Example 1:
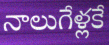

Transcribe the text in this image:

నాలుగేళ్లకే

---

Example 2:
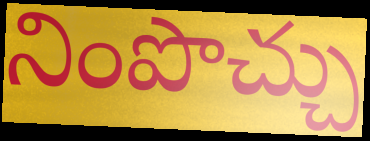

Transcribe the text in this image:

నింపొచ్చు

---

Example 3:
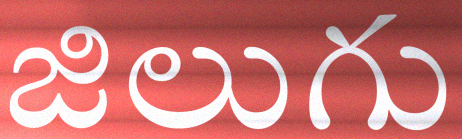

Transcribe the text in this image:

జిలుగు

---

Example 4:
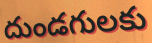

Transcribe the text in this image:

దుండగులకు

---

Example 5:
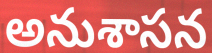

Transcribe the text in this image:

అనుశాసన